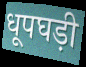
धूपघड़ी